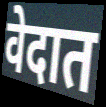
वेदात